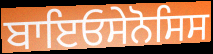
ਬਾਇਓਸੇਨੋਸਿਸ